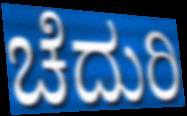
ಚೆದುರಿ